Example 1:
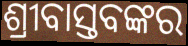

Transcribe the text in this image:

ଶ୍ରୀବାସ୍ତବଙ୍କର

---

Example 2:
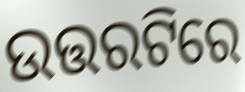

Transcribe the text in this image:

ଉତ୍ତରଟିରେ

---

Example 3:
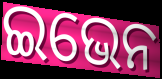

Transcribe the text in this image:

ଇଭେନ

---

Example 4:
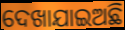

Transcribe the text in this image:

ଦେଖାଯାଇଅଛି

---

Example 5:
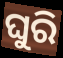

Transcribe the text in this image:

ଘୁରି